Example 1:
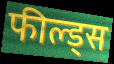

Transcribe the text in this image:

फील्ड्स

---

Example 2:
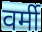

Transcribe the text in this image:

वर्मी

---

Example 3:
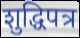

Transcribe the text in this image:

शुद्धिपत्र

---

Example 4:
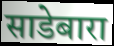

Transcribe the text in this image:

साडेबारा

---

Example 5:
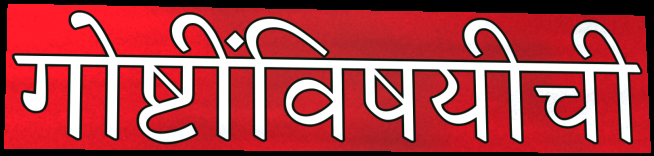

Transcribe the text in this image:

गोष्टींविषयीची